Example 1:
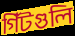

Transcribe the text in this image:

গিঁটগুলি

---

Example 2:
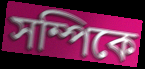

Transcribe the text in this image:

সম্পিকে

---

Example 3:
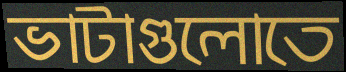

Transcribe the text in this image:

ভাটাগুলোতে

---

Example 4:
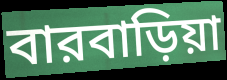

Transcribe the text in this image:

বারবাড়িয়া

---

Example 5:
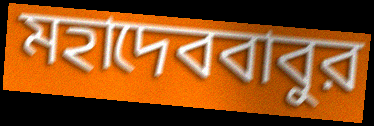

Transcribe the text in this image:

মহাদেববাবুর